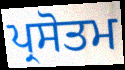
ਪ੍ਰਸੋਤਮ